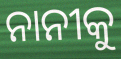
ନାନୀକୁ